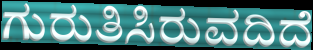
ಗುರುತಿಸಿರುವದಿದೆ